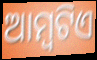
ଆମ୍ବଟିଏ